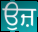
ਉਜ਼